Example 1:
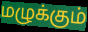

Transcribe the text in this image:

மழுக்கும்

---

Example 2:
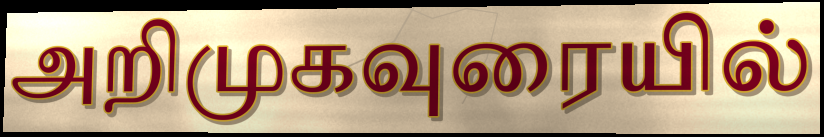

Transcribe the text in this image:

அறிமுகவுரையில்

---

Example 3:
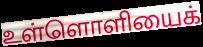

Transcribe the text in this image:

உள்ளொளியைக்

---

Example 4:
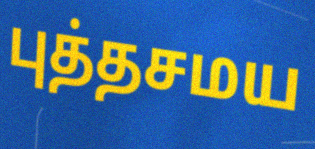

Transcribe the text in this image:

புத்தசமய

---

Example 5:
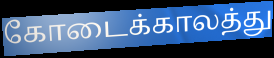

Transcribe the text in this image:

கோடைக்காலத்து